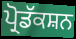
ਪ੍ਰੋਡੱਕਸ਼ਨ